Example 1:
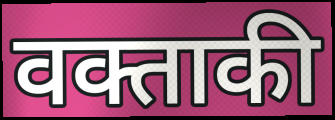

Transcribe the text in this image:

वक्ताकी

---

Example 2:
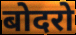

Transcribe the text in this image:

बोदरो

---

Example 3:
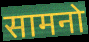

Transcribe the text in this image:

सामनो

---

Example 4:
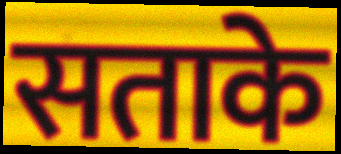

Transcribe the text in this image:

सताके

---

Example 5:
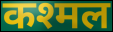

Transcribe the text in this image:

कश्मल